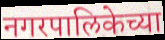
नगरपालिकेच्या